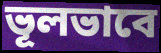
ভূলভাবে